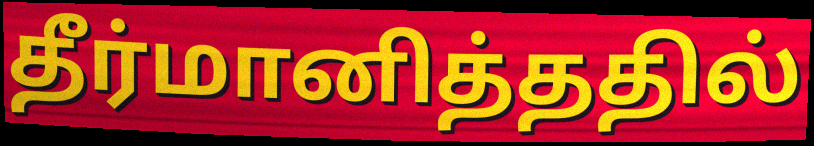
தீர்மானித்ததில்